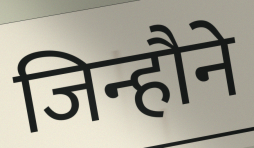
जिन्हौने